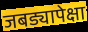
जबड्यापेक्षा